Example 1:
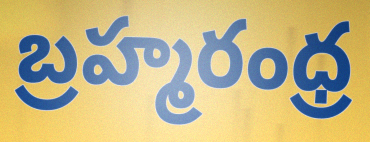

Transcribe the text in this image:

బ్రహ్మరంధ్ర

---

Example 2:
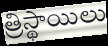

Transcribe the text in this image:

త్రిస్థాయిలు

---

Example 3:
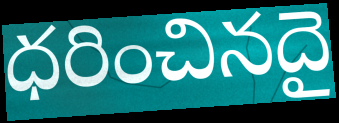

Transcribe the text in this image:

ధరించినదై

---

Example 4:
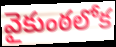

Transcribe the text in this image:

వైకుంఠలోక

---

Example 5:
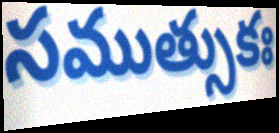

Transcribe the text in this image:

సముత్సుకః